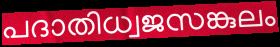
പദാതിധ്വജസങ്കുലം